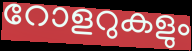
റോളറുകളും